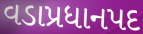
વડાપ્રધાનપદ